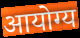
आयोग्य